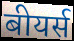
बीयर्स